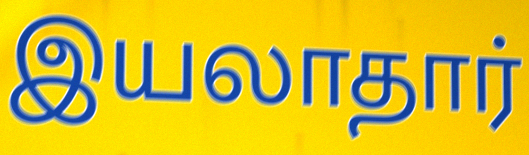
இயலாதார்